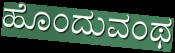
ಹೊಂದುವಂಥ